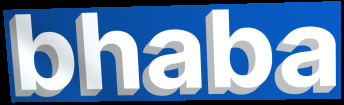
bhaba